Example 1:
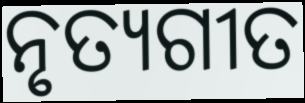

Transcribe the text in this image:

ନୃତ୍ୟଗୀତ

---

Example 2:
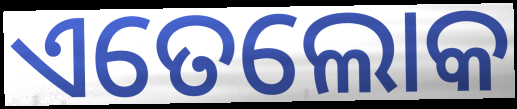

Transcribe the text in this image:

ଏତେଲୋକ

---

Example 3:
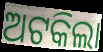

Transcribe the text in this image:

ଅଟକିଲା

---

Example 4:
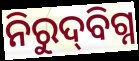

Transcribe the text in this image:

ନିରୁଦ୍‍ବିଗ୍ନ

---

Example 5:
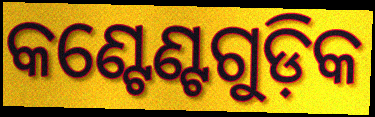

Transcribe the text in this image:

କଣ୍ଟେଣ୍ଟଗୁଡ଼ିକ